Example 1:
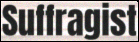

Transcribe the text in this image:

Suffragist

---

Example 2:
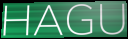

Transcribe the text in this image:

HAGU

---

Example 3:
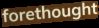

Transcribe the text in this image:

forethought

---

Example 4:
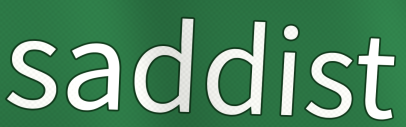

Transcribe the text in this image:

saddist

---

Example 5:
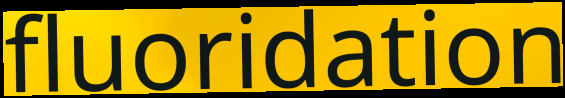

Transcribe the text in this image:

fluoridation